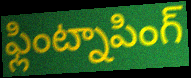
ఫ్లింట్నాపింగ్